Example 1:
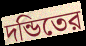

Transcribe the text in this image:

দন্ডিতের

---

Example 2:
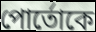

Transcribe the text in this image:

পোর্তোকে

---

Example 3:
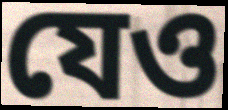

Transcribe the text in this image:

যেও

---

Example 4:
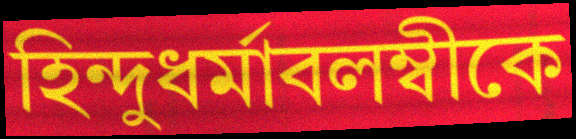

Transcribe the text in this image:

হিন্দুধর্মাবলম্বীকে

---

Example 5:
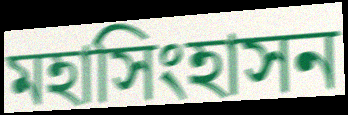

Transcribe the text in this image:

মহাসিংহাসন